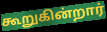
கூறுகின்றார்